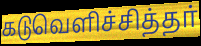
கடுவெளிச்சித்தர்